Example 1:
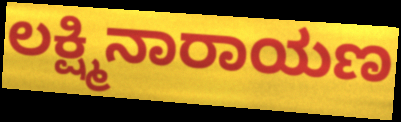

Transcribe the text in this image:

ಲಕ್ಷ್ಮಿನಾರಾಯಣ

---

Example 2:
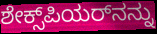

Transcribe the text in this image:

ಶೇಕ್ಸ್‌ಪಿಯರ್‌ನನ್ನು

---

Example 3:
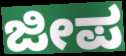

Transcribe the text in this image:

ಜೀಪ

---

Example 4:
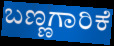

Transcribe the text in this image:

ಬಣ್ಣಗಾರಿಕೆ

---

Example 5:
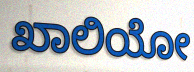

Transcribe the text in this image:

ಖಾಲಿಯೋ